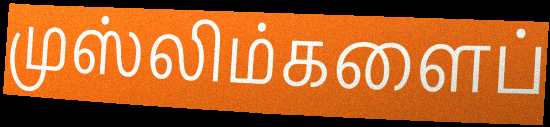
முஸ்லிம்களைப்